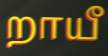
றாயீ